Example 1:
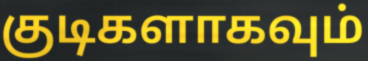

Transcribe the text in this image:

குடிகளாகவும்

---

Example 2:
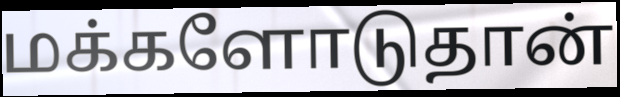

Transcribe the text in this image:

மக்களோடுதான்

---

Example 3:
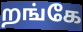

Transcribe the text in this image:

றங்கே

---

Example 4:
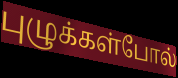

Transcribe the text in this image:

புழுக்கள்போல்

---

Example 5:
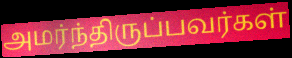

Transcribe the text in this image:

அமர்ந்திருப்பவர்கள்